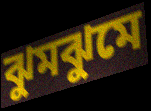
ঝুমঝুমে